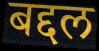
बद्दल